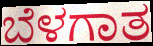
ಬೆಳಗಾತ